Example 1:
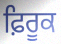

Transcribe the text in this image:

ਫ਼ਿਰੂਕ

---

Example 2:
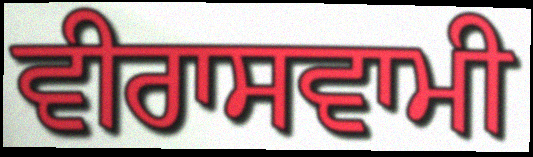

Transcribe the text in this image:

ਵੀਰਾਸਵਾਮੀ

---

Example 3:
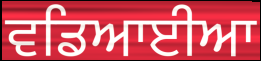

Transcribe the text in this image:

ਵਡਿਆਈਆ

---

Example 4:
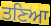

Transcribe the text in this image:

ਤਣਿਆ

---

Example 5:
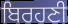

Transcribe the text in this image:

ਬਿਰਹਣੀ